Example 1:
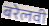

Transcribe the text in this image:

बरेलवी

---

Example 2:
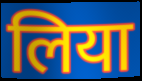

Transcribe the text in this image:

लिया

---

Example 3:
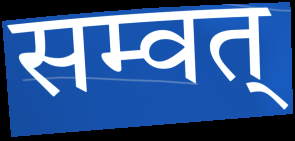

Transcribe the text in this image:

सम्वत्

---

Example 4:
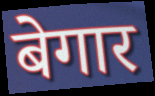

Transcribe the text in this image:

बेगार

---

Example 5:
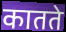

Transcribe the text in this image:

कातते